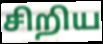
சிறிய